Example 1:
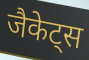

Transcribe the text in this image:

जैकेट्स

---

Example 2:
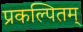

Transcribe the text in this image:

प्रकल्पितम्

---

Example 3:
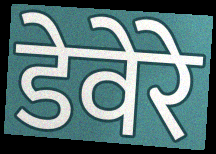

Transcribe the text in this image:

डेवेरे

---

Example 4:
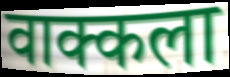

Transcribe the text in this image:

वाक्कला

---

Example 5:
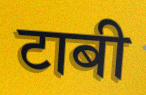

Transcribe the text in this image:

टाबी